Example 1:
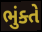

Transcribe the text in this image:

ભુંક્તે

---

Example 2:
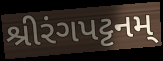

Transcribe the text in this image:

શ્રીરંગપટ્ટનમ્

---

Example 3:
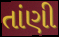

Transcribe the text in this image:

તાંણી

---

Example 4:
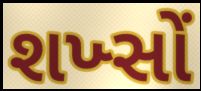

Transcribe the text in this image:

શખ્સોં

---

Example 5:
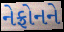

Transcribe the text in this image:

નેફ્રોનને